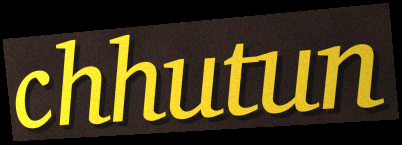
chhutun